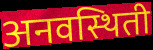
अनवस्थिती